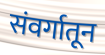
संवर्गातून